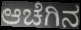
ಆಚೆಗಿನ